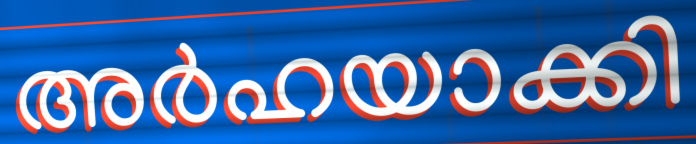
അർഹയാക്കി